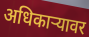
अधिकाऱ्यावर